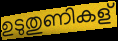
ഉടുതുണികള്